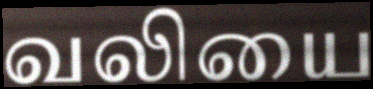
வலியை